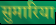
सुमारिया